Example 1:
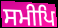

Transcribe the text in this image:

ਸਮੀਪਿ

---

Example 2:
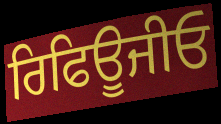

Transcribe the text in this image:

ਰਿਫਿਊਜੀਓ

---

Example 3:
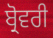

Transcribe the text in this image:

ਬ੍ਰੋਵਰੀ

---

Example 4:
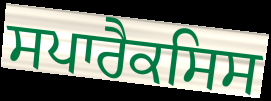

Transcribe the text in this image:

ਸਪਾਰੈਕਸਿਸ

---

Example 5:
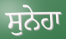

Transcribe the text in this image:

ਸੁਨੇਹਾ